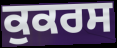
ਕੁਕਰਸ